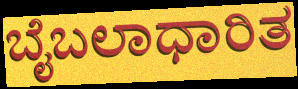
ಬೈಬಲಾಧಾರಿತ